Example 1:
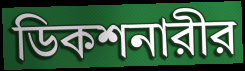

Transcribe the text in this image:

ডিকশনারীর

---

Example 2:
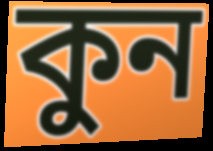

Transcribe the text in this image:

কুন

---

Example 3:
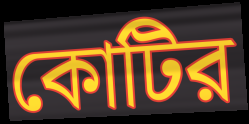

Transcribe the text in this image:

কোটির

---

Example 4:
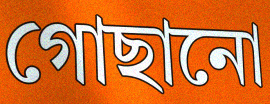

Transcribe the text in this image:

গোছানো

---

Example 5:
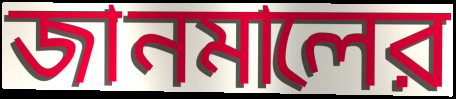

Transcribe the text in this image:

জানমালের